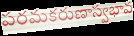
పరమకరుణాస్వభావ